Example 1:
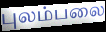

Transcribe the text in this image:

புலம்பலை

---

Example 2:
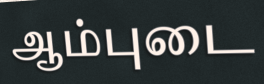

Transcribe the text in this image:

ஆம்புடை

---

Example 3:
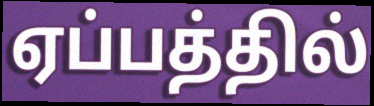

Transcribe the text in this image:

ஏப்பத்தில்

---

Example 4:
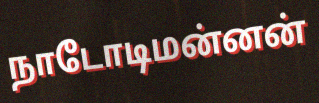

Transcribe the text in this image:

நாடோடிமன்னன்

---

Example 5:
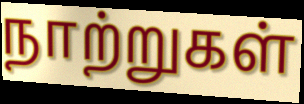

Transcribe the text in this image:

நாற்றுகள்